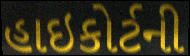
હાઇકોર્ટની